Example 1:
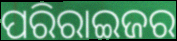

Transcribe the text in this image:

ପରିରାଇଜର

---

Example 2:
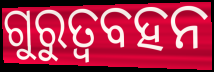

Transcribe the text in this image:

ଗୁରୁତ୍ୱବହନ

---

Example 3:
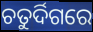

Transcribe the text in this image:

ଚତୁର୍ଦିଗରେ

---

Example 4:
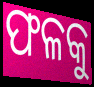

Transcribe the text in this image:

ଫଳକୁ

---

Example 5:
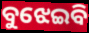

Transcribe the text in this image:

ବୁଝେଇବି